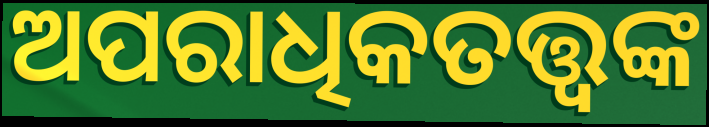
ଅପରାଧିକତତ୍ତ୍ୱଙ୍କ